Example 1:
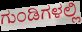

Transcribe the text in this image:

ಗುಂಡಿಗಳಲ್ಲಿ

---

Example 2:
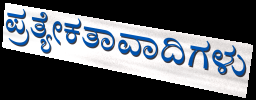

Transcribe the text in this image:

ಪ್ರತ್ಯೇಕತಾವಾದಿಗಳು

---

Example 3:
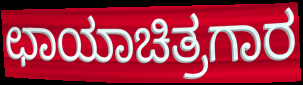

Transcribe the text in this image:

ಛಾಯಾಚಿತ್ರಗಾರ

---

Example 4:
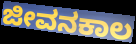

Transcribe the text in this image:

ಜೀವನಕಾಲ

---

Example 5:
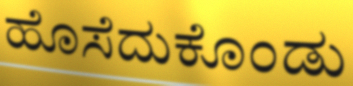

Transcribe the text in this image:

ಹೊಸೆದುಕೊಂಡು